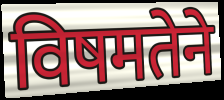
विषमतेने